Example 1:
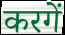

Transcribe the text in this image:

करगें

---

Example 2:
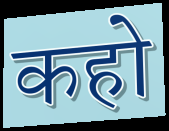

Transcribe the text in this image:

कहो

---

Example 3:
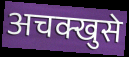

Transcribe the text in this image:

अचक्खुसे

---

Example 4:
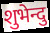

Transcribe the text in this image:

शुभेन्दु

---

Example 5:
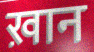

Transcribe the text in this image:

ख़ान